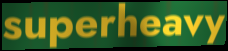
superheavy